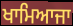
ਖਾਮਿਆਜਾ